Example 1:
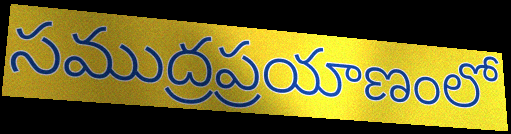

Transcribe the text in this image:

సముద్రప్రయాణంలో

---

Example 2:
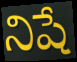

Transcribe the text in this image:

నిషే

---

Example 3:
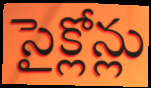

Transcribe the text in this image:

సైక్లోన్లు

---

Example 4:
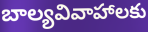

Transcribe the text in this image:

బాల్యవివాహాలకు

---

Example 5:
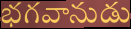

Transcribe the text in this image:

భగవానుడు